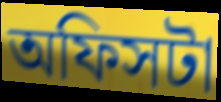
অফিসটা